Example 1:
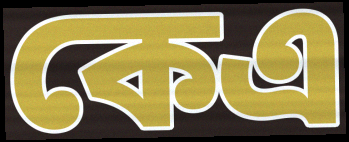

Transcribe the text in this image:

কেএ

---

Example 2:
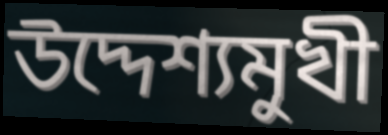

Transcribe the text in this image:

উদ্দেশ্যমুখী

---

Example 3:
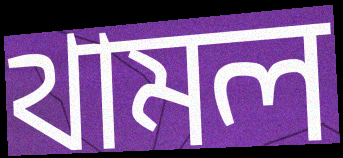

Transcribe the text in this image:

থামল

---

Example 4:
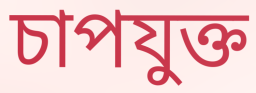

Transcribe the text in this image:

চাপযুক্ত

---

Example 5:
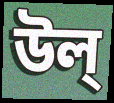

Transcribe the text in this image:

উল্